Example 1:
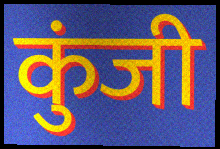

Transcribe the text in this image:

कुंजी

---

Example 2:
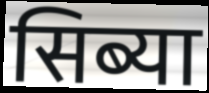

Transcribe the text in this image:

सिब्या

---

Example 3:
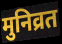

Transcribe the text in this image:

मुनिव्रत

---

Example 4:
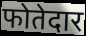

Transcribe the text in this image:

फोतेदार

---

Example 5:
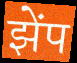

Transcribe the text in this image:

झेंप